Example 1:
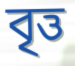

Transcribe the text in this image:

বৃত্ত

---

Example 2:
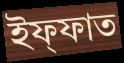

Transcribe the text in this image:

ইফ্ফাত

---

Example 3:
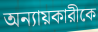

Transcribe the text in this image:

অন্যায়কারীকে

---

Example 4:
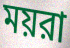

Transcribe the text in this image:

ময়রা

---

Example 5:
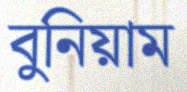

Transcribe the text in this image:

বুনিয়াম